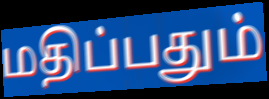
மதிப்பதும்